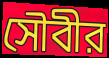
সৌবীর